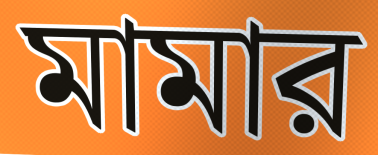
মামার